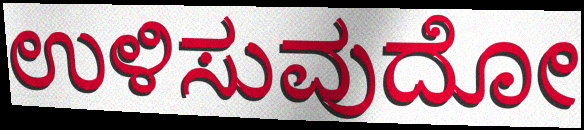
ಉಳಿಸುವುದೋ